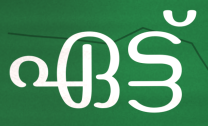
ഏട്ട്